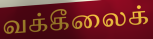
வக்கீலைக்